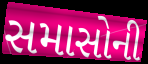
સમાસોની